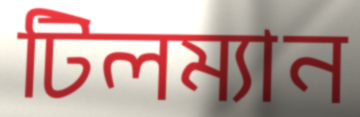
টিলম্যান